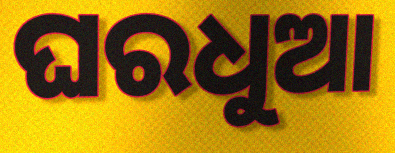
ଘରଧୁଆ